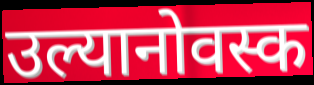
उल्यानोवस्क